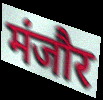
मंजौर